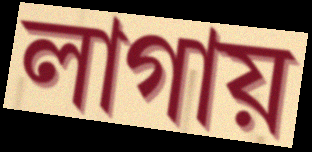
লাগায়